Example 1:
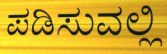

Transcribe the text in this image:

ಪಡಿಸುವಲ್ಲಿ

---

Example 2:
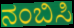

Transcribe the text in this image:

ನಂಬಿಸಿ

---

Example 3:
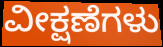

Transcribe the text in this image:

ವೀಕ್ಷಣೆಗಳು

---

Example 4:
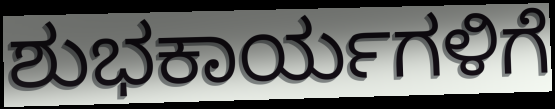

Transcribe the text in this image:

ಶುಭಕಾರ್ಯಗಳಿಗೆ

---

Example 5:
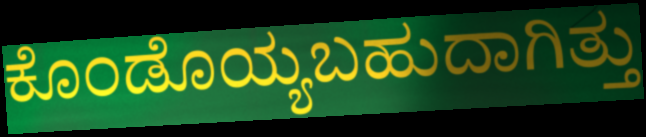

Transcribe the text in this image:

ಕೊಂಡೊಯ್ಯಬಹುದಾಗಿತ್ತು